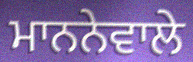
ਮਾਨਨੇਵਾਲੇ